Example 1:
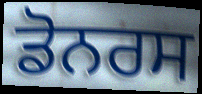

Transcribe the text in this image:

ਡੋਨਰਸ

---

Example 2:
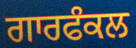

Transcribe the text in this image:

ਗਾਰਫੰਕਲ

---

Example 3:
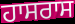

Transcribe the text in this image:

ਹਾਸਰਾਸ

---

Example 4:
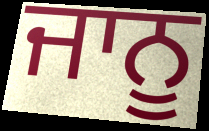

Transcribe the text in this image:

ਜਾਨੂ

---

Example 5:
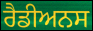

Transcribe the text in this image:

ਰੈਡੀਅਨਸ